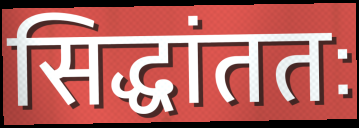
सिद्धांततः